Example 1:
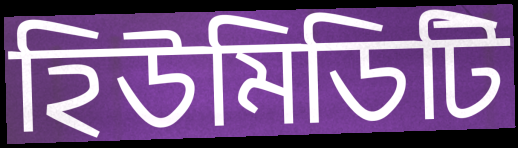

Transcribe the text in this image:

হিউমিডিটি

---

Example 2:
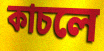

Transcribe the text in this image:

কাচলে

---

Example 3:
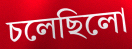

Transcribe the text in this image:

চলেছিলো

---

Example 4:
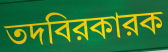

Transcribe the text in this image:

তদবিরকারক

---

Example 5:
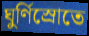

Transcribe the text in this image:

ঘুর্ণিস্রোতে